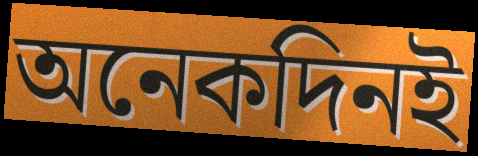
অনেকদিনই